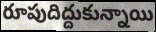
రూపుదిద్దుకున్నాయి